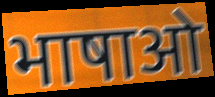
भाषाओ